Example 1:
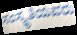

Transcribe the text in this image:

ಸಂಸ್ಕೃತಿಯವರು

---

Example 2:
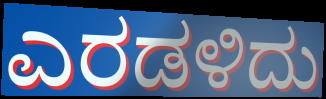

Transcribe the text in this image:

ಎರಡಳಿದು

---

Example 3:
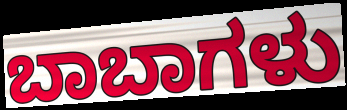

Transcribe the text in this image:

ಬಾಬಾಗಳು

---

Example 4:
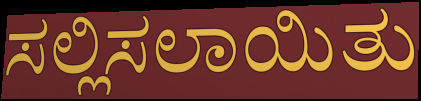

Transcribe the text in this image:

ಸಲ್ಲಿಸಲಾಯಿತು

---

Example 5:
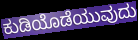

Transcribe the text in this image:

ಕುಡಿಯೊಡೆಯುವುದು